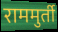
राममुर्ती